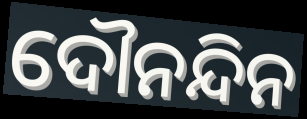
ଦୌନନ୍ଦିନ